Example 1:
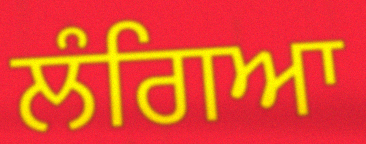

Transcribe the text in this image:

ਲੰਗਿਆ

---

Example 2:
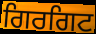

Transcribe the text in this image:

ਗਿਰਗਿਟ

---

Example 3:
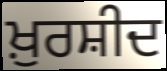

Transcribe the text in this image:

ਖ਼ੁਰਸ਼ੀਦ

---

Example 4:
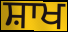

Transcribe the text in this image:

ਸ਼ਾਖ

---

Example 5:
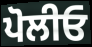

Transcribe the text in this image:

ਪੋਲੀਓ